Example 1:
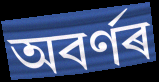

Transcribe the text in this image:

অবৰ্ণৰ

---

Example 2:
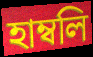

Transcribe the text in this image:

হাম্বলি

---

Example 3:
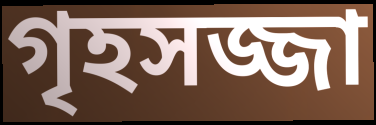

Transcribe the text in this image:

গৃহসজ্জা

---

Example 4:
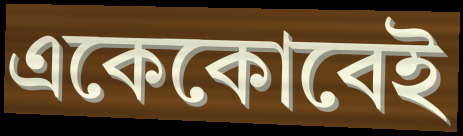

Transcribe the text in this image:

একেকোবেই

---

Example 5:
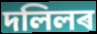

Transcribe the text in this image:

দলিলৰ